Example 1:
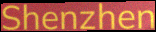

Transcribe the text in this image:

Shenzhen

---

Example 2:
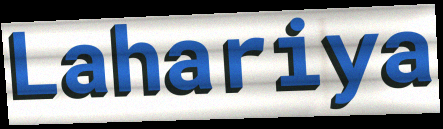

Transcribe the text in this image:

Lahariya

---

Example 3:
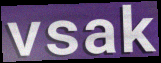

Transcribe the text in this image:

vsak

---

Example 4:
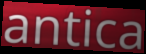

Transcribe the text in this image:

antica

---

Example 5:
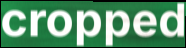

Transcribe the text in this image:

cropped